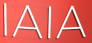
IAIA